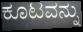
ಕೂಟವನ್ನು